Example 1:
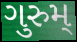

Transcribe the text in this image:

ગુરુમ્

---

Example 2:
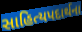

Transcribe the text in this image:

સાહિત્યપદાર્થના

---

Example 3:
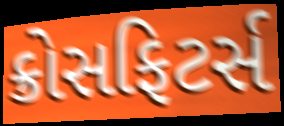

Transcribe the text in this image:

ક્રોસફિટર્સ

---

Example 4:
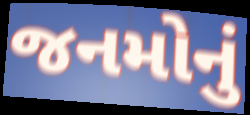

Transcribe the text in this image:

જનમોનું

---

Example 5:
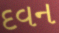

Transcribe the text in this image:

દવન